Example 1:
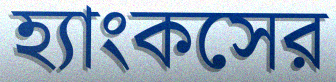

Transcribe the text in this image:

হ্যাংকসের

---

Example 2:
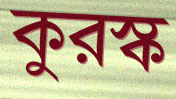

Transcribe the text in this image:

কুরস্ক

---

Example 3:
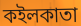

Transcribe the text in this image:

কইলকাতা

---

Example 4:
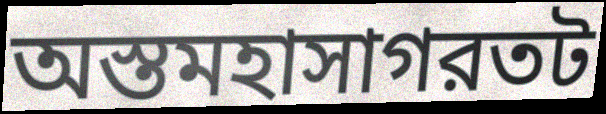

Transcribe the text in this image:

অস্তমহাসাগরতট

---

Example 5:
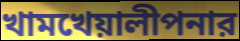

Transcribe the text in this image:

খামখেয়ালীপনার